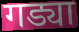
गड्या